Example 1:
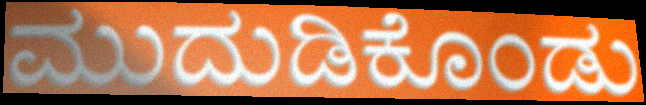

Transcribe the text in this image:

ಮುದುಡಿಕೊಂಡು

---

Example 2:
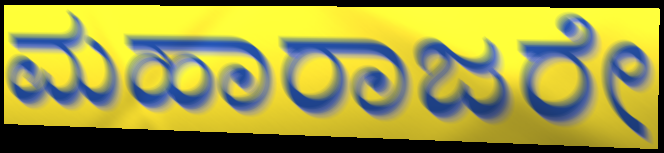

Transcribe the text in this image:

ಮಹಾರಾಜರೇ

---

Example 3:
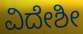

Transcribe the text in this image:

ವಿದೇಶೀ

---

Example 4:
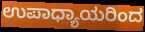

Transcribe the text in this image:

ಉಪಾಧ್ಯಾಯರಿಂದ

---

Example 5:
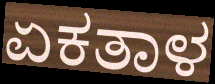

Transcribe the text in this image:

ಏಕತಾಳ